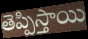
తెప్పిస్తాయి